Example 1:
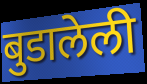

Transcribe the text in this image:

बुडालेली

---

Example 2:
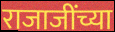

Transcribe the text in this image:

राजाजींच्या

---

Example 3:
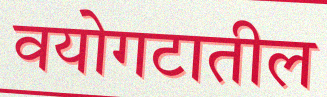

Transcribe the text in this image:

वयोगटातील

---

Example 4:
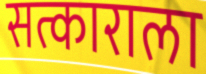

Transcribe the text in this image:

सत्काराला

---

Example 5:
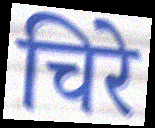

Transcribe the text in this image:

चिरे